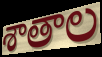
శాతాల